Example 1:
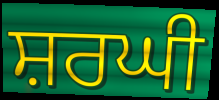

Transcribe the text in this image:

ਸ਼ਰਘੀ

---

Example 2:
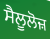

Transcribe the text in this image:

ਸੈਲੂਲੋਜ਼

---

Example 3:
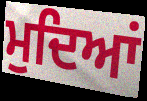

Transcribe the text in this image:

ਮੁਦਿਆਂ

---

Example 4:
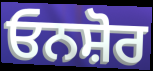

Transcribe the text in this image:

ਓਨਸ਼ੋਰ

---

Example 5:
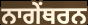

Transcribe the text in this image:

ਨਾਗੇਂਥਰਨ